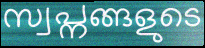
സ്വപ്നങ്ങളുടെ